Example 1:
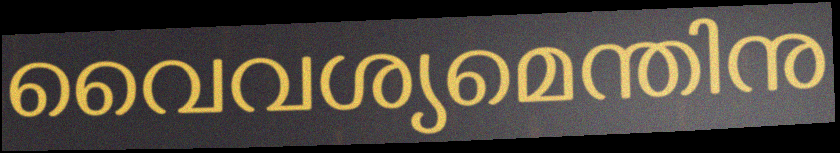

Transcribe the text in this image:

വൈവശ്യമെന്തിനു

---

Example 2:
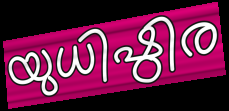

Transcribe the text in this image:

യുധിഷ്ഠിര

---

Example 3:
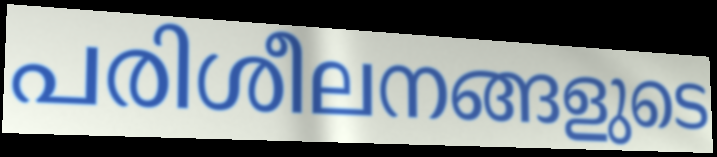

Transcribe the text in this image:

പരിശീലനങ്ങളുടെ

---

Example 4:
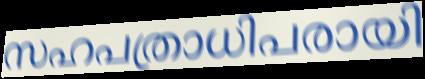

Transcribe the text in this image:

സഹപത്രാധിപരായി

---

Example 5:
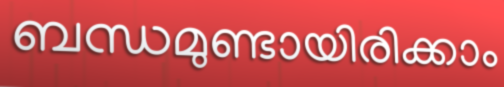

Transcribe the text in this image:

ബന്ധമുണ്ടായിരിക്കാം